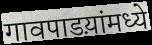
गावपाडय़ांमध्ये